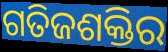
ଗତିଜଶକ୍ତିର